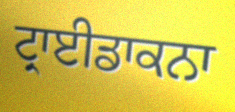
ਟ੍ਰਾਈਡਾਕਨਾ